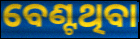
ବେଣ୍ଟଥିବା